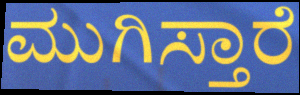
ಮುಗಿಸ್ತಾರೆ